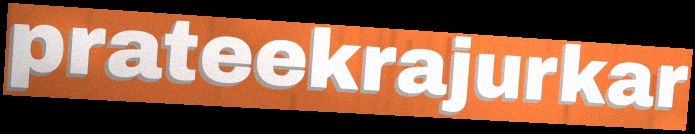
prateekrajurkar